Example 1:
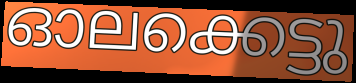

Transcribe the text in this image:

ഓലക്കെട്ടു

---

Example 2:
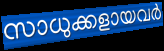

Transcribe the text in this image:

സാധുക്കളായവർ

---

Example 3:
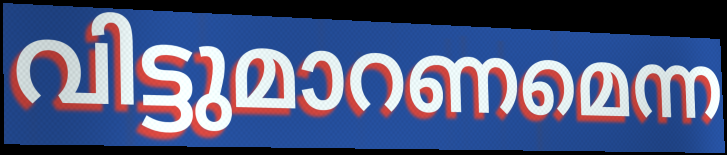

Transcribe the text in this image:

വിട്ടുമാറണമെന്ന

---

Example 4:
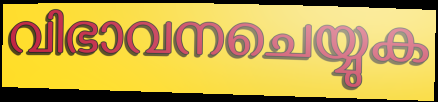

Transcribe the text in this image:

വിഭാവനചെയ്യുക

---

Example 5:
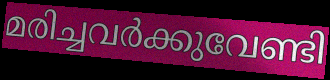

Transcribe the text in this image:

മരിച്ചവർക്കുവേണ്ടി